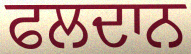
ਫਲਦਾਨ